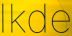
Ikde